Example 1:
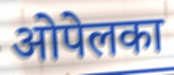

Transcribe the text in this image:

ओपेलका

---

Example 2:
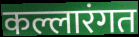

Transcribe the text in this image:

कल्लारंगत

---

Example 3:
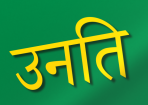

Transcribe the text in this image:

उनति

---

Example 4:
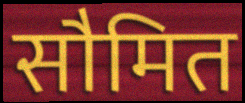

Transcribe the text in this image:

सौमित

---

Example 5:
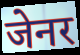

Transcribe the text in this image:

जेनर